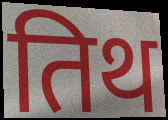
तिथ